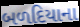
બળદિયાના